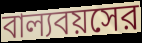
বাল্যবয়সের